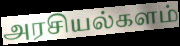
அரசியல்களம்